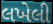
લખેલી